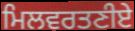
ਮਿਲਵਰਤਣੀਏ